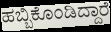
ಹಬ್ಬಿಕೊಂಡಿದ್ದಾರೆ